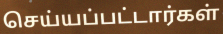
செய்யப்பட்டார்கள்